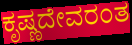
ಕೃಷ್ಣದೇವರಂತ